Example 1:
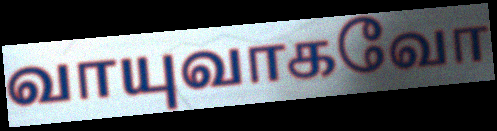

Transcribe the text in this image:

வாயுவாகவோ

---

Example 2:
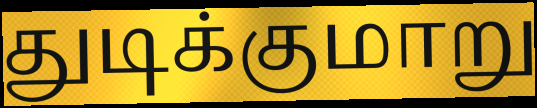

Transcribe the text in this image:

துடிக்குமாறு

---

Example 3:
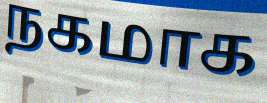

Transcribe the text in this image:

நகமாக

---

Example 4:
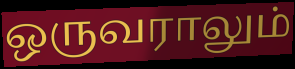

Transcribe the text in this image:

ஒருவராலும்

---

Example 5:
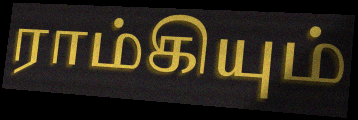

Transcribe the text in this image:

ராம்கியும்